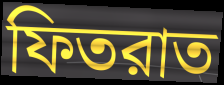
ফিতরাত